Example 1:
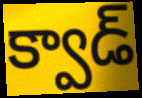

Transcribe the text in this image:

క్వాడ్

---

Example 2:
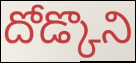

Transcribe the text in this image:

దోడ్కొని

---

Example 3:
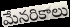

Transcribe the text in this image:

మేనరికాలు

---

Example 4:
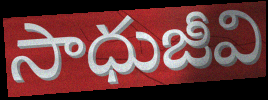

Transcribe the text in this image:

సాధుజీవి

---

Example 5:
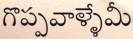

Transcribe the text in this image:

గొప్పవాళ్ళేమీ